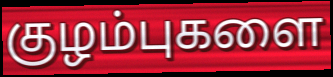
குழம்புகளை